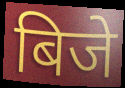
बिजे